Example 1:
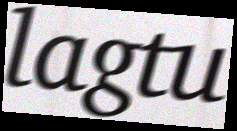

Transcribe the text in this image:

lagtu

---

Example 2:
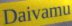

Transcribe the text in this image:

Daivamu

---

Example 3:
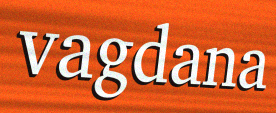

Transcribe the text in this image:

vagdana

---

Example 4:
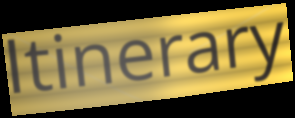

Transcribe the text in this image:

Itinerary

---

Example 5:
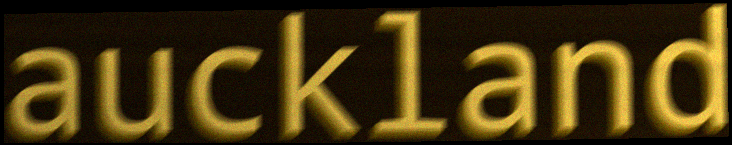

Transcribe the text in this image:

auckland